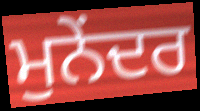
ਮੁਨੇਂਦਰ